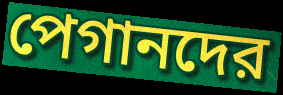
পেগানদের